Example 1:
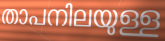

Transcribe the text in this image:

താപനിലയുള്ള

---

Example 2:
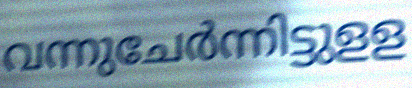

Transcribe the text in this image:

വന്നുചേർന്നിട്ടുളള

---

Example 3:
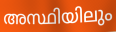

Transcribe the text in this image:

അസ്ഥിയിലും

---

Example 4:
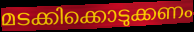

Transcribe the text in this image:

മടക്കിക്കൊടുക്കണം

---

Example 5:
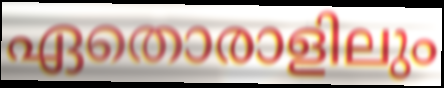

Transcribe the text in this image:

ഏതൊരാളിലും